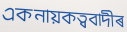
একনায়কত্ববাদীৰ